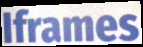
Iframes